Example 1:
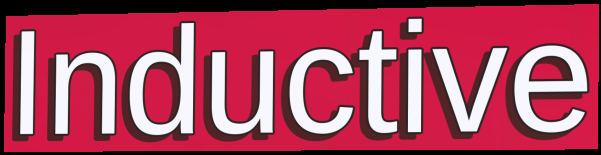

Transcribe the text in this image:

Inductive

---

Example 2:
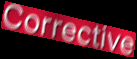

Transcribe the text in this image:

Corrective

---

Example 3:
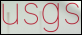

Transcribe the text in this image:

usgs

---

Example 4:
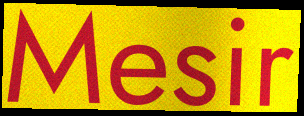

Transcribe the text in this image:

Mesir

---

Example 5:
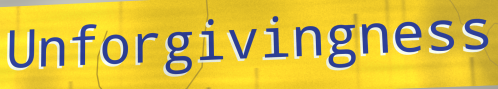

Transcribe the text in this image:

Unforgivingness